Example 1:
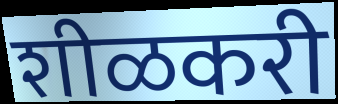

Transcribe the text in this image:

शीळकरी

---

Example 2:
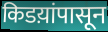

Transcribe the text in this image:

किडय़ांपासून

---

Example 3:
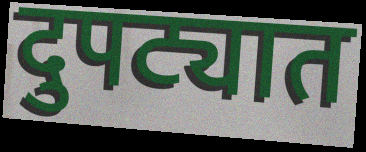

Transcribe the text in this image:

दुपट्यात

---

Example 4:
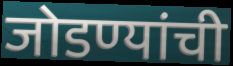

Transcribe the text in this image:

जोडण्यांची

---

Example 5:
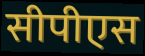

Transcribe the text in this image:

सीपीएस